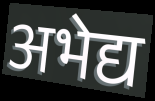
अभेद्य